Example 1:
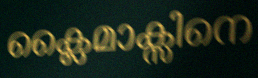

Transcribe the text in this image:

ക്ലൈമാക്സിനെ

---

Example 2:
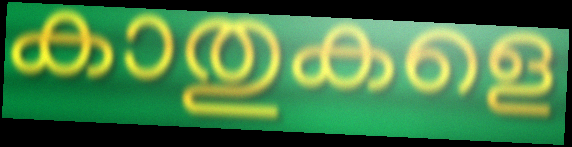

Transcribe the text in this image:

കാതുകളെ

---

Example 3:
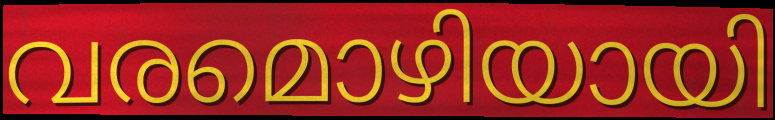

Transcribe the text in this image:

വരമൊഴിയായി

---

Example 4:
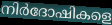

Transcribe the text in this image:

നിർദോഷികളെ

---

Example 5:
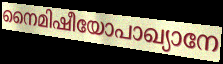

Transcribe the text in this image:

നൈമിഷീയോപാഖ്യാനേ